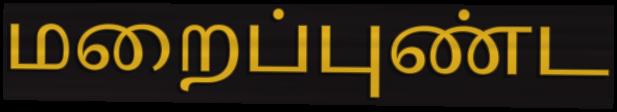
மறைப்புண்ட